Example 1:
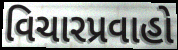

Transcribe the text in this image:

વિચારપ્રવાહો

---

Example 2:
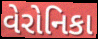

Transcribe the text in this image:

વેરોનિકા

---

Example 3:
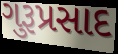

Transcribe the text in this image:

ગુરૂપ્રસાદ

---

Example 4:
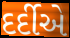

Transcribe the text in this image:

દર્દીએ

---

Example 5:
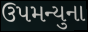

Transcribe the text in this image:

ઉપમન્યુના